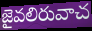
జైవలిరువాచ